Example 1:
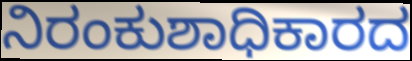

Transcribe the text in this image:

ನಿರಂಕುಶಾಧಿಕಾರದ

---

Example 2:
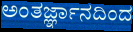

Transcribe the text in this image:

ಅಂತರ್ಜ್ಞಾನದಿಂದ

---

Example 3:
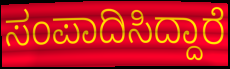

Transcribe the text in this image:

ಸಂಪಾದಿಸಿದ್ದಾರೆ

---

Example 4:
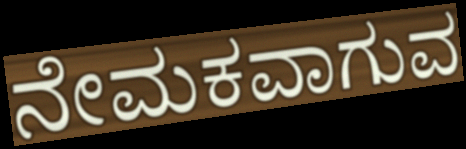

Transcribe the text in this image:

ನೇಮಕವಾಗುವ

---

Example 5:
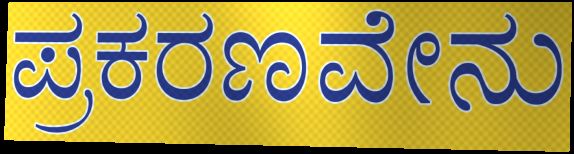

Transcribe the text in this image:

ಪ್ರಕರಣವೇನು